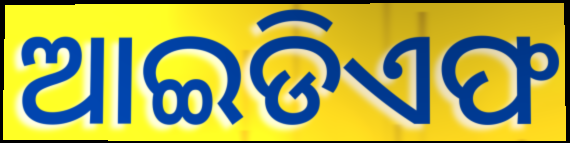
ଆଇଡିଏଫ